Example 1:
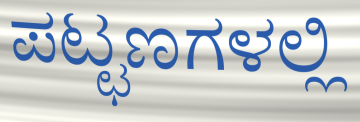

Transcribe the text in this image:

ಪಟ್ಟಣಗಳಲ್ಲಿ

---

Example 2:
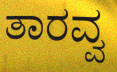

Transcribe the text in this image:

ತಾರವ್ವ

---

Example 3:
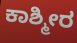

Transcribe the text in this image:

ಕಾಶ್ಮೀರ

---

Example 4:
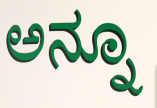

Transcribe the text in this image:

ಅನ್ನೂ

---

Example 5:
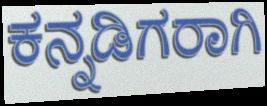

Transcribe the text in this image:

ಕನ್ನಡಿಗರಾಗಿ